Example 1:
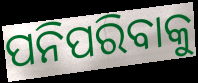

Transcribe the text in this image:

ପନିପରିବାକୁ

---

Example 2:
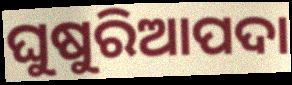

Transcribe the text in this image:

ଘୁଷୁରିଆପଦା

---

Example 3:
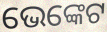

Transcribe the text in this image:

ଭେଙ୍କେଟ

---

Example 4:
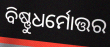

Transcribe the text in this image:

ବିଷ୍ଣୁଧର୍ମୋତ୍ତର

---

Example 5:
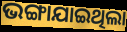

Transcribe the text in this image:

ଭଙ୍ଗାଯାଇଥିଲା